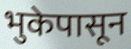
भुकेपासून